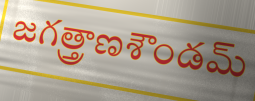
జగత్త్రాణశౌండమ్